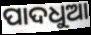
ପାଦଧୁଆ